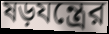
ষড়যন্ত্রের